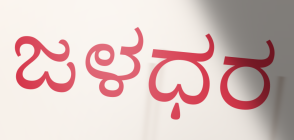
ಜಳಧರ